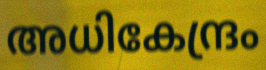
അധികേന്ദ്രം